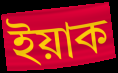
ইয়াক